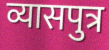
व्यासपुत्र